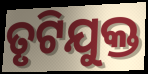
ତୃଟିଯୁକ୍ତ